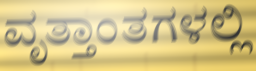
ವೃತ್ತಾಂತಗಳಲ್ಲಿ